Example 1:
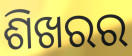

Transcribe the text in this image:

ଶିଖରର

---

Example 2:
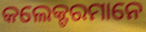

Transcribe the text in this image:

କଲେକ୍ଟରମାନେ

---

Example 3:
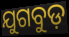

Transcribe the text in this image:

ଯୁଗବୁଡ଼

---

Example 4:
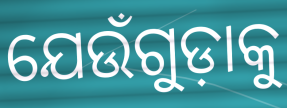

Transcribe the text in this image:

ଯେଉଁଗୁଡ଼ାକୁ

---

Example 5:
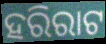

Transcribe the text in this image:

ହରିରାଟ